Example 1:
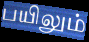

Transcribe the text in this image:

பயிலும்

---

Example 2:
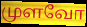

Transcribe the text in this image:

முளவோ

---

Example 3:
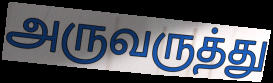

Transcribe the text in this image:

அருவருத்து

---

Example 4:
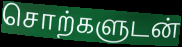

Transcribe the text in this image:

சொற்களுடன்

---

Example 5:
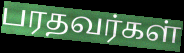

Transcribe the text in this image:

பரதவர்கள்